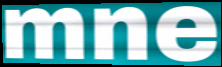
mne